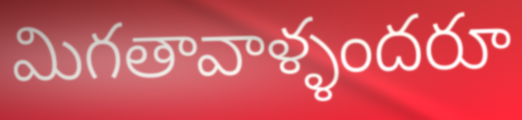
మిగతావాళ్ళందరూ